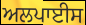
ਅਲਪਾਈਸ